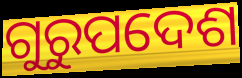
ଗୁରୁପଦେଶ